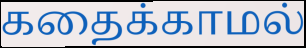
கதைக்காமல்